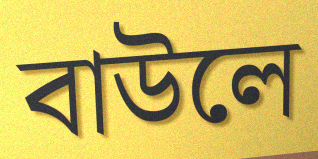
বাউলে